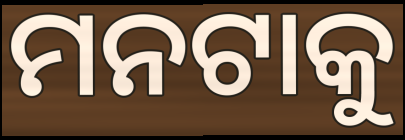
ମନଟାକୁ